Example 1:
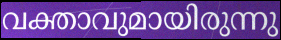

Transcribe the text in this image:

വക്താവുമായിരുന്നു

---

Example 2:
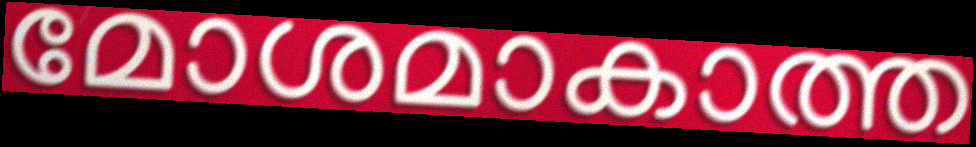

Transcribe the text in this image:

മോശമാകാത്ത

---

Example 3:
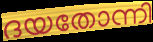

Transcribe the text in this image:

ദയതോന്നി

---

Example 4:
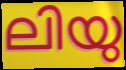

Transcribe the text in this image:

ലിയു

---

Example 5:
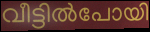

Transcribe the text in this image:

വീട്ടിൽപോയി